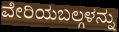
ವೇರಿಯಬಲ್ಗಳನ್ನು